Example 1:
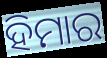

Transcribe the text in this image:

ହିମାର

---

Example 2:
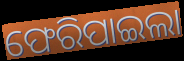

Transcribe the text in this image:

ଫେରିପାଇଲା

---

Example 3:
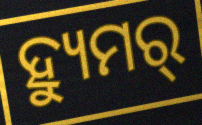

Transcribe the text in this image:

ହ୍ୟୁମର୍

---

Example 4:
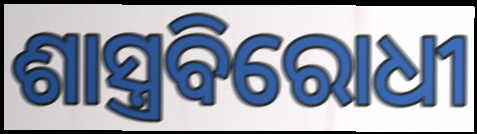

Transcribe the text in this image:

ଶାସ୍ତ୍ରବିରୋଧୀ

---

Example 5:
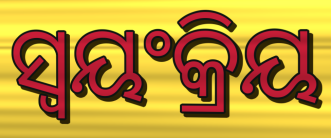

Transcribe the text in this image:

ସ୍ୱୟଂକ୍ରିୟ